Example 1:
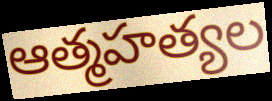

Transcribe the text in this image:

ఆత్మహత్యల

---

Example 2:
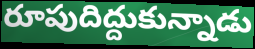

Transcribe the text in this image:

రూపుదిద్దుకున్నాడు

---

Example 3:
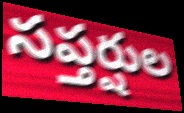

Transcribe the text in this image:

సప్తర్షుల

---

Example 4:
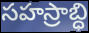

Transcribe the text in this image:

సహస్రాబ్ధి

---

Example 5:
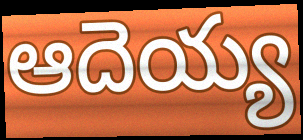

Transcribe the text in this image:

ఆదెయ్య